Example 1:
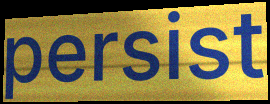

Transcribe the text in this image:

persist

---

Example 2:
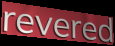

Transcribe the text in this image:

revered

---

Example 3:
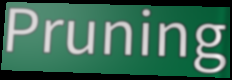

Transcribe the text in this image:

Pruning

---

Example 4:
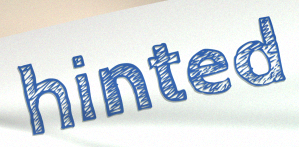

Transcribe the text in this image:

hinted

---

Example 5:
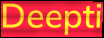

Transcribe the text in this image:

Deepti